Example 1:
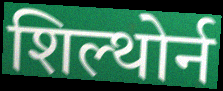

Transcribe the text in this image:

शिल्थोर्न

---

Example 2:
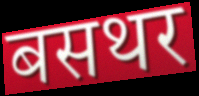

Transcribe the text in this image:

बसथर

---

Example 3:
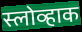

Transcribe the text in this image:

स्लोव्हाक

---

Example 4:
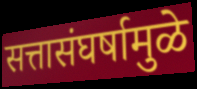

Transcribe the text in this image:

सत्तासंघर्षामुळे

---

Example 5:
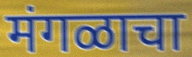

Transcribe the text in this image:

मंगळाचा